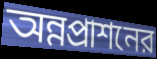
অন্নপ্রাশনের